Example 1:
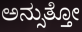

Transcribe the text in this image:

ಅನ್ಸುತ್ತೋ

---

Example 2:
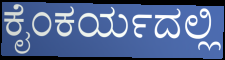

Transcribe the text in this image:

ಕೈಂಕರ್ಯದಲ್ಲಿ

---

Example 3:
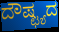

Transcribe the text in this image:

ದೌಷ್ಟ್ಯದ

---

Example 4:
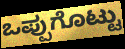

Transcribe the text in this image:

ಒಪ್ಪುಗೊಟ್ಟು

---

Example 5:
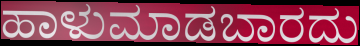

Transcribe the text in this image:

ಹಾಳುಮಾಡಬಾರದು